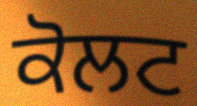
ਕੋਲਟ